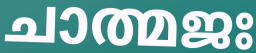
ചാത്മജഃ